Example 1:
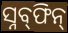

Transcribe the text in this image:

ସ୍ନବ୍‍ଫିନ୍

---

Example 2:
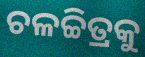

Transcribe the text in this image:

ଚଳଚ୍ଚିତ୍ରକୁ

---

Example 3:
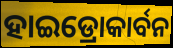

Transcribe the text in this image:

ହାଇଡ୍ରୋକାର୍ବନ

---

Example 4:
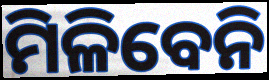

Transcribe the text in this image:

ମିଳିବେନି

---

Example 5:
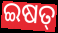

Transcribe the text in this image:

ଇଷତ୍